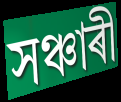
সঞ্চাৰী